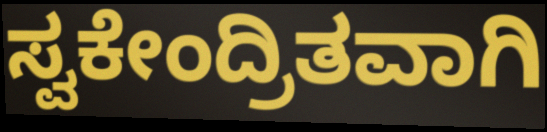
ಸ್ವಕೇಂದ್ರಿತವಾಗಿ